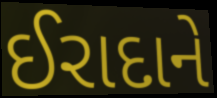
ઈરાદાને